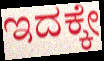
ಇದಕ್ಕೇ